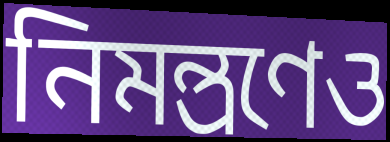
নিমন্ত্রণেও